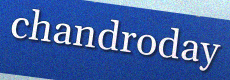
chandroday